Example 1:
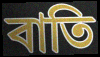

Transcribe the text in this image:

বাতি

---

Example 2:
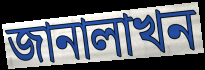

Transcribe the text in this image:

জানালাখন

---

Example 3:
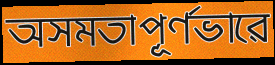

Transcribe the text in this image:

অসমতাপূৰ্ণভাৱে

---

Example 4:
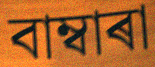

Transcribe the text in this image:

বাম্বাৰা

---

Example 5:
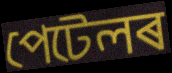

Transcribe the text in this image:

পেটেলৰ